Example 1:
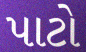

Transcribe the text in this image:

પાટો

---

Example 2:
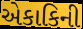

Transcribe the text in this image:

એકાકિની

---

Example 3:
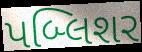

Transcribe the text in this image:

પબ્લિશર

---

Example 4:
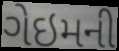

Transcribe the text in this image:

ગેઇમની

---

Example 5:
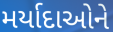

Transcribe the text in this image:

મર્યાદાઓને